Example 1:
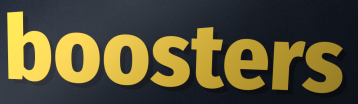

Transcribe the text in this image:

boosters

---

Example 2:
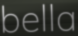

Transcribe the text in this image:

bella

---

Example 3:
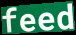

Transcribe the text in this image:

feed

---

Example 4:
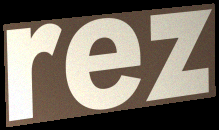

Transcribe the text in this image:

rez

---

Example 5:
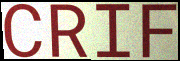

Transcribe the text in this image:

CRIF